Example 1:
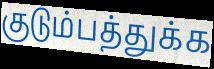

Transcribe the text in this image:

குடும்பத்துக்க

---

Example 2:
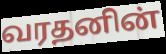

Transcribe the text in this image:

வரதனின்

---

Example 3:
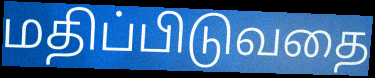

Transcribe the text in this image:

மதிப்பிடுவதை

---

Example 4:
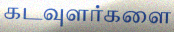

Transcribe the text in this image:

கடவுளர்களை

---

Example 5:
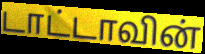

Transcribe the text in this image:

டாட்டாவின்